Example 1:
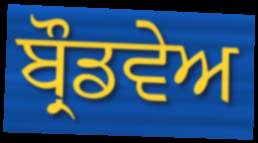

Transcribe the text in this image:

ਬ੍ਰੌਡਵੇਅ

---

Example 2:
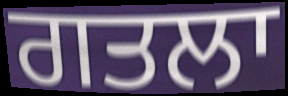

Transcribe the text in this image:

ਗਤਲਾ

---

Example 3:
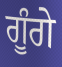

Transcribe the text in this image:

ਗੂੰਗੇ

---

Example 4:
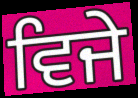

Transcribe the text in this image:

ਵਿਜੇ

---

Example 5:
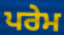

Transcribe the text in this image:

ਪਰੇਮ